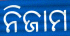
ନିଜାମ